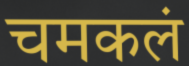
चमकलं